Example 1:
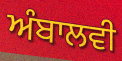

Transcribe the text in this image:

ਅੰਬਾਲਵੀ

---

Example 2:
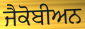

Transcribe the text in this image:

ਜੈਕੋਬੀਅਨ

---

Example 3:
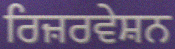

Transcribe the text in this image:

ਰਿਜ਼ਰਵੇਸ਼ਨ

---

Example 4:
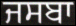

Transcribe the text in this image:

ਜਸਬਾ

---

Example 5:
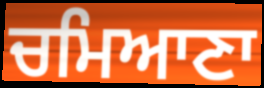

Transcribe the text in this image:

ਚਮਿਆਣਾ